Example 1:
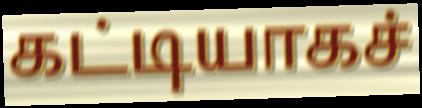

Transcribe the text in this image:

கட்டியாகச்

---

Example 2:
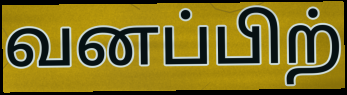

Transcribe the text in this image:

வனப்பிற்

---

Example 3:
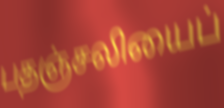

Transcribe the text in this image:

பதஞ்சலியைப்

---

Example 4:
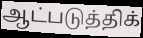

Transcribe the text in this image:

ஆட்படுத்திக்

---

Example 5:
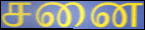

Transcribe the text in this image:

சனை